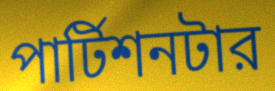
পার্টিশনটার